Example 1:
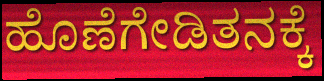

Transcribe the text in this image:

ಹೊಣೆಗೇಡಿತನಕ್ಕೆ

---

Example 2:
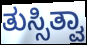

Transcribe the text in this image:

ತುಸ್ಸಿತ್ವಾ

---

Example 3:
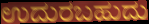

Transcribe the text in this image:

ಉದುರಬಹುದು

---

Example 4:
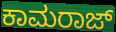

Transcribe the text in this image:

ಕಾಮರಾಜ್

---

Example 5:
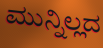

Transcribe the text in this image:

ಮುನ್ನಿಲ್ಲದ